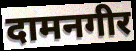
दामनगीर